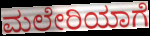
ಮಲೇರಿಯಾಗೆ